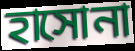
হাসোনা